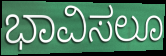
ಭಾವಿಸಲೂ